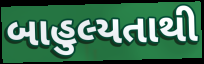
બાહુલ્યતાથી